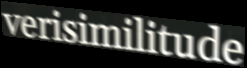
verisimilitude